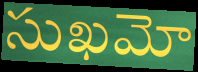
సుఖమో